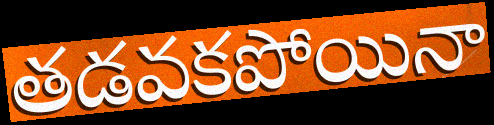
తడవకపోయినా